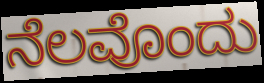
ನೆಲವೊಂದು